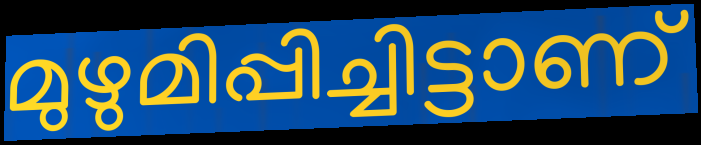
മുഴുമിപ്പിച്ചിട്ടാണ്